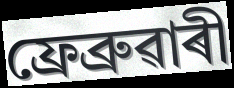
ফ্ৰেব্ৰুৱাৰী